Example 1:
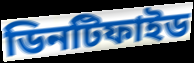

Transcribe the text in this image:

ডিনটিফাইড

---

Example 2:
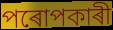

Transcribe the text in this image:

পৰোপকাৰী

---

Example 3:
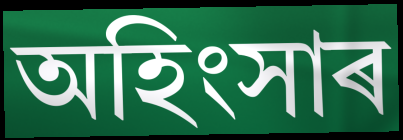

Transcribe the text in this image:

অহিংসাৰ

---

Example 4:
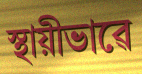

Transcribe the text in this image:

স্থায়ীভাৱে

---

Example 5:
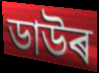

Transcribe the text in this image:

ডাউৰ